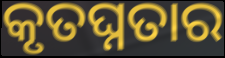
କୃତଘ୍ନତାର